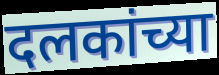
दलकांच्या